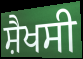
ਸ਼ੈਖਸੀ